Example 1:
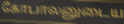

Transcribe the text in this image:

கோபாலனுடைய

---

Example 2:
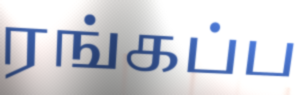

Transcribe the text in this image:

ரங்கப்ப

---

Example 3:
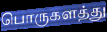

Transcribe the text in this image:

பொருகளத்து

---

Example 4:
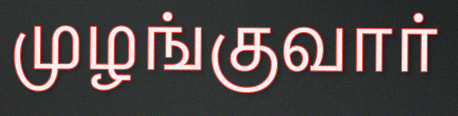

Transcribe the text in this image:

முழங்குவார்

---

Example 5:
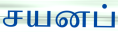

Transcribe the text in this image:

சயனப்